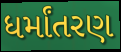
ધર્માંતરણ